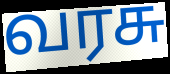
வரசு